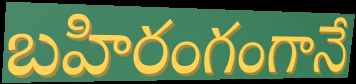
బహిరంగంగానే